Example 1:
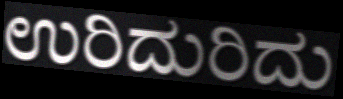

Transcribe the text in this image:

ಉರಿದುರಿದು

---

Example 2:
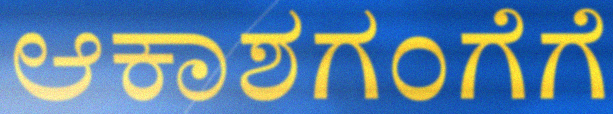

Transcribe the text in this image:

ಆಕಾಶಗಂಗೆಗೆ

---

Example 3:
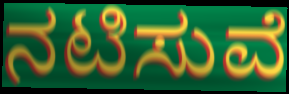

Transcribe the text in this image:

ನಟಿಸುವೆ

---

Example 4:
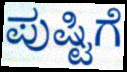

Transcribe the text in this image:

ಪುಷ್ಟಿಗೆ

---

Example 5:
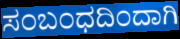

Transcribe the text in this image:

ಸಂಬಂಧದಿಂದಾಗಿ